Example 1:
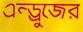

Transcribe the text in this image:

এন্ড্রুজের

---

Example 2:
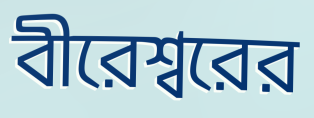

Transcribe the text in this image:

বীরেশ্বরের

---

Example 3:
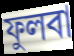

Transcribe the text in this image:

ফুলবা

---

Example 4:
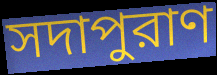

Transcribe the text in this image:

সদাপুরাণ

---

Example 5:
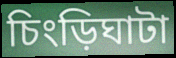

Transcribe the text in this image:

চিংড়িঘাটা